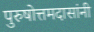
पुरुषोत्तमदासांनी